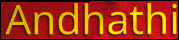
Andhathi